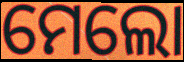
ମେଲୋ